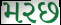
મરછ